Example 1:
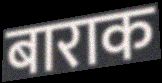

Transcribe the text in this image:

बाराक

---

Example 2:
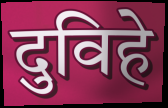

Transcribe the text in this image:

दुविहे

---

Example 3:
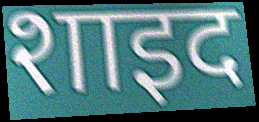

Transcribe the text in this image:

शाइद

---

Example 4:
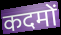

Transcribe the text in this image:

कदमों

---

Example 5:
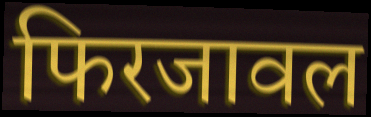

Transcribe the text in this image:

फिरजावल